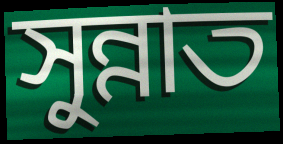
সুন্নাত